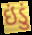
ઇંડું